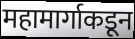
महामार्गाकडून